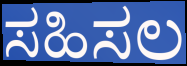
ಸಹಿಸಲ